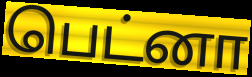
பெட்னா